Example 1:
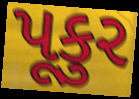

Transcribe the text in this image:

પૂકુર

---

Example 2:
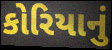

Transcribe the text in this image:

કોરિયાનું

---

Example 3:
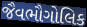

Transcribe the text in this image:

જૈવભૌગોલિક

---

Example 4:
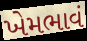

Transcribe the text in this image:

ખેમભાવં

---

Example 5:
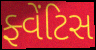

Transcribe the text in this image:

ફ્વેંટિસ